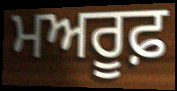
ਮਅਰੂਫ਼